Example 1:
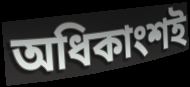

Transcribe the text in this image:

অধিকাংশই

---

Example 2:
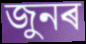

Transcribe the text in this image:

জুনৰ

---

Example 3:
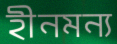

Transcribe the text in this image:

হীনমন্য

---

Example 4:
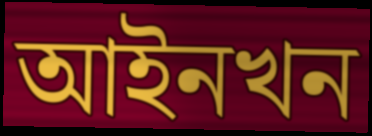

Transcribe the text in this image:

আইনখন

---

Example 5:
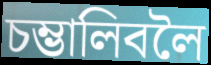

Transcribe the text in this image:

চম্ভালিবলৈ